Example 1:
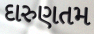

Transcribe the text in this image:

દારુણતમ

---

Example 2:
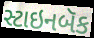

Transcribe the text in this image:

સ્ટાઇનબૅક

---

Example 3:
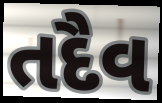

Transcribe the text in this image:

તદૈવ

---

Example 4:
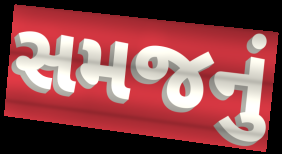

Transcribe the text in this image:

સમજનું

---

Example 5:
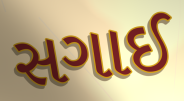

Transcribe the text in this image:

સગાઈ